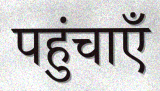
पहुंचाएँ